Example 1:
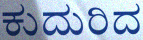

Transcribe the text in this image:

ಕುದುರಿದ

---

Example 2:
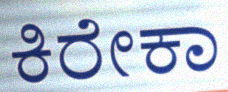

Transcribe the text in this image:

ಕಿರೇಕಾ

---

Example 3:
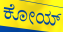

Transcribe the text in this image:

ಕೋಯ್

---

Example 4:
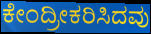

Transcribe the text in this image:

ಕೇಂದ್ರೀಕರಿಸಿದವು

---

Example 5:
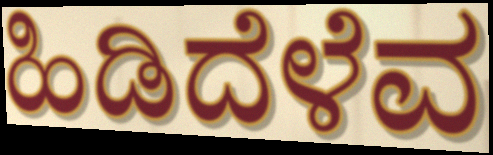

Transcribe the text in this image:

ಹಿಡಿದೆಳೆವ